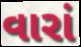
વારાં